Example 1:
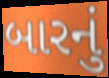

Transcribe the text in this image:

બારનું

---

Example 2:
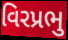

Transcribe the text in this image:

વિરપ્રભુ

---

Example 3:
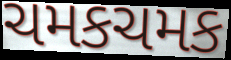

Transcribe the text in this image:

ચમકચમક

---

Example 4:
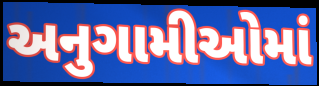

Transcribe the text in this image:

અનુગામીઓમાં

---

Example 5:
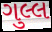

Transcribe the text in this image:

ગુલ્લ